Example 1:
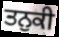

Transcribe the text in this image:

ਤਨੁਕੀ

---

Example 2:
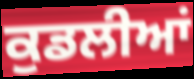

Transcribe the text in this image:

ਕੁਡਲੀਆਂ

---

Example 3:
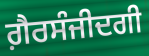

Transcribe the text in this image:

ਗ਼ੈਰਸੰਜੀਦਗੀ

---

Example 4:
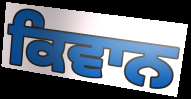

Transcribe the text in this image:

ਕਿਵਾਨ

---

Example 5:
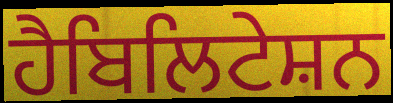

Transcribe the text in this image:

ਹੈਬਿਲਿਟੇਸ਼ਨ